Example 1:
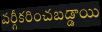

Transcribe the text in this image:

వర్గీకరించబడ్డాయి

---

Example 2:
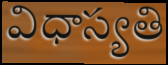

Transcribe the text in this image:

విధాస్యతి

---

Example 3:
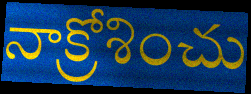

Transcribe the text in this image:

నాక్రోశించు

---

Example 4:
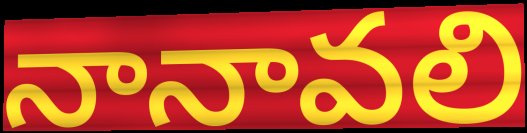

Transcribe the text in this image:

నానావలి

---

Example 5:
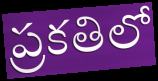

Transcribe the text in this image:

ప్రకతిలో